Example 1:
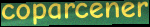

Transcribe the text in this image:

coparcener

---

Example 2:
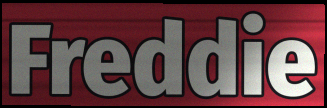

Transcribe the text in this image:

Freddie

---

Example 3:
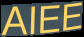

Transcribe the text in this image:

AIEE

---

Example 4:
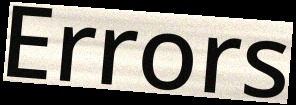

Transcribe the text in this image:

Errors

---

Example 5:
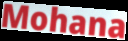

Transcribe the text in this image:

Mohana